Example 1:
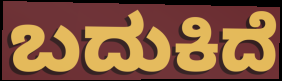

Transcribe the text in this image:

ಬದುಕಿದೆ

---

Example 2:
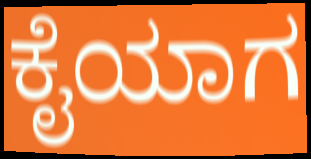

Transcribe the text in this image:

ಕೈಯಾಗ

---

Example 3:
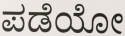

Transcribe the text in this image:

ಪಡೆಯೋ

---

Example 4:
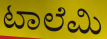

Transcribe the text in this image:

ಟಾಲೆಮಿ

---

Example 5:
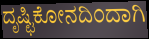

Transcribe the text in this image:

ದೃಷ್ಟಿಕೋನದಿಂದಾಗಿ